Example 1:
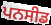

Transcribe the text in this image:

ਪਨਸੀਡ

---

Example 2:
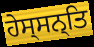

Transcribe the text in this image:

ਹੇਸ੍ਸਨ੍ਤਿ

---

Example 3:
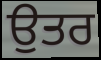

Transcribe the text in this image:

ਉੁਤਰ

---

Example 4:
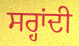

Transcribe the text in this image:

ਸਰ੍ਹਾਂਦੀ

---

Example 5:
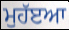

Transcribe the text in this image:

ਮੁਹੱੲਆ